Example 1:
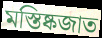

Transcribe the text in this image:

মস্তিষ্কজাত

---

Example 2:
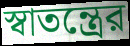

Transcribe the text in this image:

স্বাতন্ত্রের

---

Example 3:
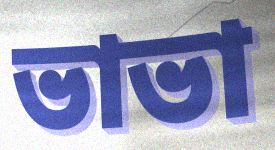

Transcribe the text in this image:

ভাভা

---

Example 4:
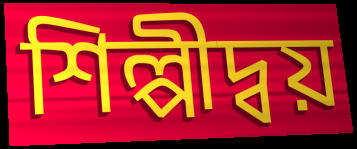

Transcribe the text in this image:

শিল্পীদ্বয়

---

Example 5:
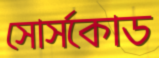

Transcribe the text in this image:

সোর্সকোড